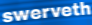
swerveth